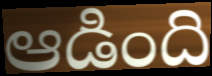
ఆడింది